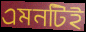
এমনটিই